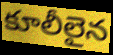
కూలీలైన